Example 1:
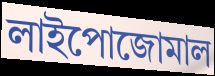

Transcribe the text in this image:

লাইপোজোমাল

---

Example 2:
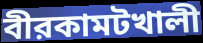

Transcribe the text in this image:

বীরকামটখালী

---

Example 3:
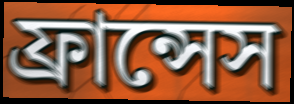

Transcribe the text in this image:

ফ্রান্সেস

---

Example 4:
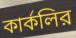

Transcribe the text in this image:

কার্কলির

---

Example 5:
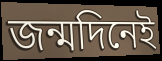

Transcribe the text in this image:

জন্মদিনেই